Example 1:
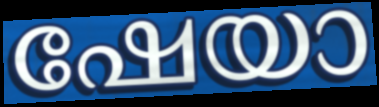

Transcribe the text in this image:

ഷേയാ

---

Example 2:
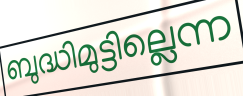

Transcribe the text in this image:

ബുദ്ധിമുട്ടില്ലെന്ന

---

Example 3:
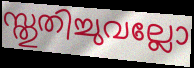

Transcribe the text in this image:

സ്തുതിച്ചുവല്ലോ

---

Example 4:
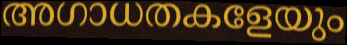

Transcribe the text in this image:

അഗാധതകളേയും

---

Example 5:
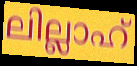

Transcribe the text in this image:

ലില്ലാഹ്